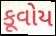
કૂવોય